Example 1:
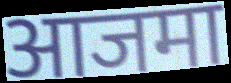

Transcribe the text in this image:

आजमा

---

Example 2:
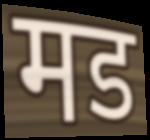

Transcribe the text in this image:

मड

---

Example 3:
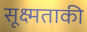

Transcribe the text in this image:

सूक्ष्मताकी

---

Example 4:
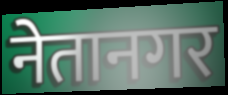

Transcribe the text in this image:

नेतानगर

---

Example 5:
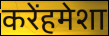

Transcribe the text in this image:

करेंहमेशा